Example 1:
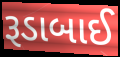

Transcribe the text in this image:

રૂડાબાઈ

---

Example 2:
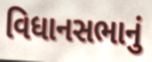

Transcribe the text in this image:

વિધાનસભાનું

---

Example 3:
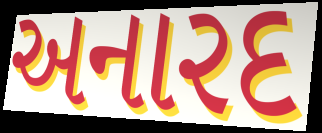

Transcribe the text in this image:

અનારદ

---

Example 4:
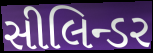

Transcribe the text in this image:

સીલિન્ડર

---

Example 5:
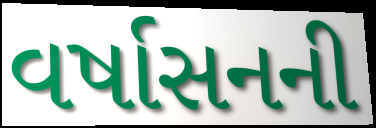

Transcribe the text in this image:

વર્ષાસનની